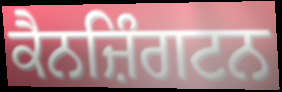
ਕੈਨਜ਼ਿੰਗਟਨ